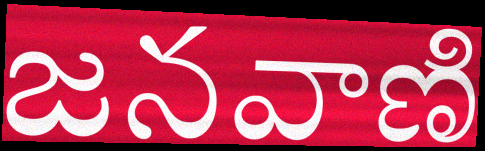
జనవాణి